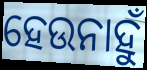
ହେଉନାହୁଁ